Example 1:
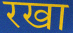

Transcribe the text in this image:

रखा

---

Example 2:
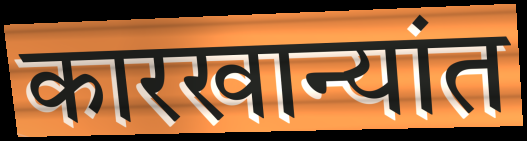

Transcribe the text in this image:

कारखान्यांत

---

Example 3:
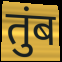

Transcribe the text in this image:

तुंब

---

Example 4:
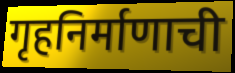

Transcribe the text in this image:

गृहनिर्माणाची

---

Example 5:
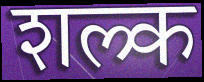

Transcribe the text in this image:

शल्क